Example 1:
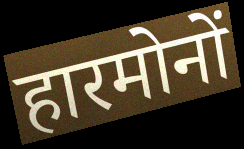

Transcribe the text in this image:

हारमोनों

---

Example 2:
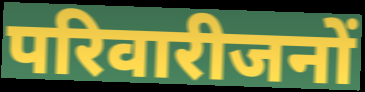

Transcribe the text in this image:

परिवारीजनों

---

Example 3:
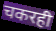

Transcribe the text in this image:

चकरही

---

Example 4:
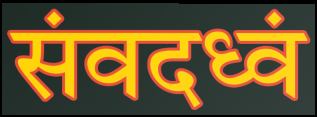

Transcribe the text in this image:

संवदध्वं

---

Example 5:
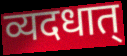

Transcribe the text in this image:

व्यदधात्